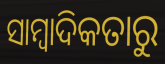
ସାମ୍ବାଦିକତାରୁ